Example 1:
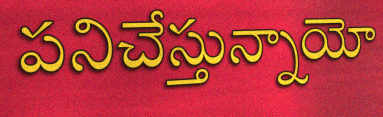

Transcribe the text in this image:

పనిచేస్తున్నాయో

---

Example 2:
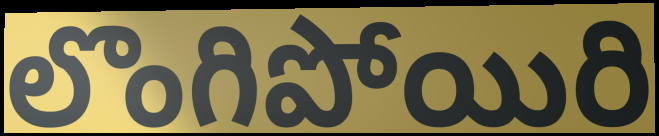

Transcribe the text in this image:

లొంగిపోయిరి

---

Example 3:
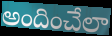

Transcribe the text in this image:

అందించేలా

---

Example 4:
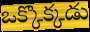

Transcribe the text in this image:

ఒక్కొక్కడు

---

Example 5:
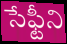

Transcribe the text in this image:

సేఫ్టీని